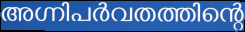
അഗ്നിപർവതത്തിന്റെ